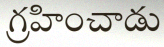
గ్రహించాడు